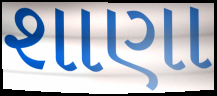
શાણા